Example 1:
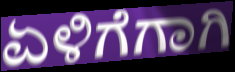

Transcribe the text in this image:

ಏಳಿಗೆಗಾಗಿ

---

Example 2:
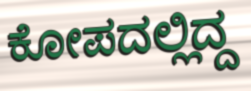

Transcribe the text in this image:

ಕೋಪದಲ್ಲಿದ್ದ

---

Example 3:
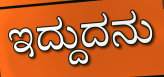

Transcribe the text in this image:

ಇದ್ದುದನು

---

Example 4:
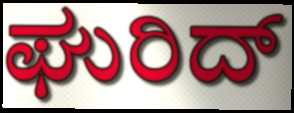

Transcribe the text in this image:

ಘುರಿದ್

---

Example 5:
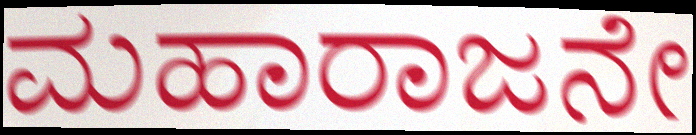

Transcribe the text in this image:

ಮಹಾರಾಜನೇ